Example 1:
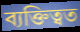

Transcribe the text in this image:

ব্যক্তিত্বত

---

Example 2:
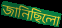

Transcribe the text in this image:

জানিছিলো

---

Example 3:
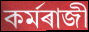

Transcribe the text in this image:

কৰ্মৰাজী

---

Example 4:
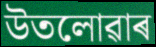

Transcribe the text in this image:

উতলোৱাৰ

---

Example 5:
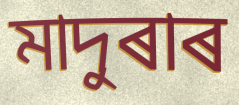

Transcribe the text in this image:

মাদুৰাৰ